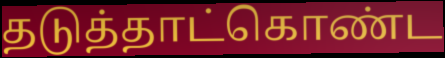
தடுத்தாட்கொண்ட